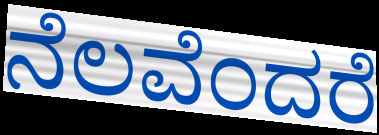
ನೆಲವೆಂದರೆ